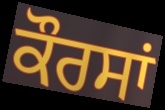
ਕੌਰਸਾਂ